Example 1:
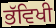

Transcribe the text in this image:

ਭੱਵਿਖੀ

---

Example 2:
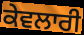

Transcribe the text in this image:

ਕੇਵਲਾਰੀ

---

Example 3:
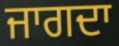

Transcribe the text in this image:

ਜਾਗਦਾ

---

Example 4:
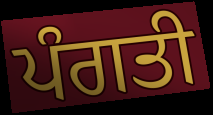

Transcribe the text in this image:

ਪੰਗਤੀ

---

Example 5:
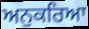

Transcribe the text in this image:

ਅਨੁਕਰਿਆ